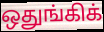
ஒதுங்கிக்